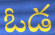
ఓడ